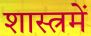
शास्त्रमें